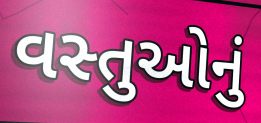
વસ્તુઓનું